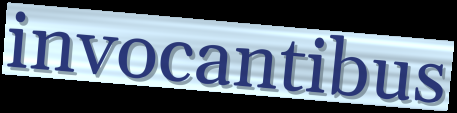
invocantibus